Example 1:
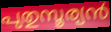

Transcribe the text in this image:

പുതുസൂര്യൻ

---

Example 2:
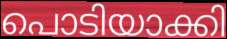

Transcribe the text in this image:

പൊടിയാക്കി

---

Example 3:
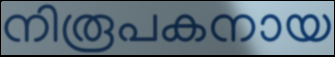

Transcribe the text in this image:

നിരൂപകനായ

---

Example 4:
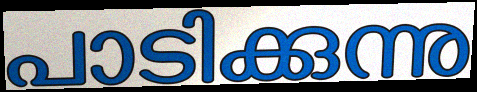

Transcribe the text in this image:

പാടിക്കുന്നു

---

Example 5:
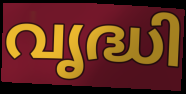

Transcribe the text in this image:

വൃദ്ധി